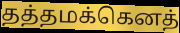
தத்தமக்கெனத்